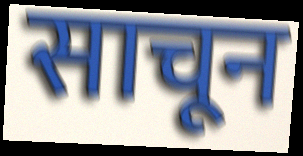
साचून